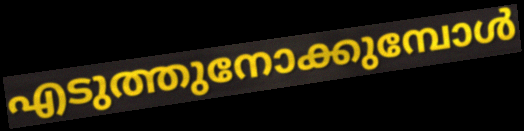
എടുത്തുനോക്കുമ്പോൾ